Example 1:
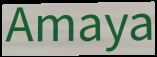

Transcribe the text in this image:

Amaya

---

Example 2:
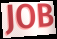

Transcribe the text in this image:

JOB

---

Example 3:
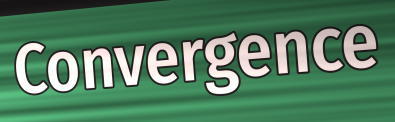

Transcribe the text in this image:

Convergence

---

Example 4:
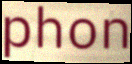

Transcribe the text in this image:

phon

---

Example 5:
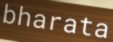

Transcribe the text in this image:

bharata